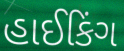
હાઈકિંગ